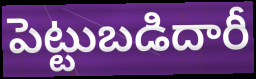
పెట్టుబడిదారీ